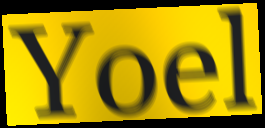
Yoel